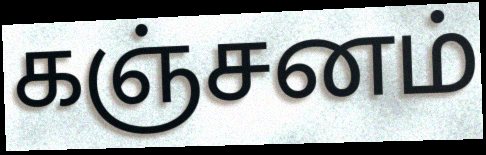
கஞ்சனம்